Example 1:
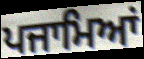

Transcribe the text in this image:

ਪਜਾਮਿਆਂ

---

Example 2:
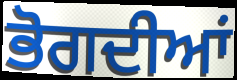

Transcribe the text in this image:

ਭੋਗਦੀਆਂ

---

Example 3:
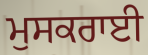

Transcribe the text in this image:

ਮੁਸਕਰਾਈ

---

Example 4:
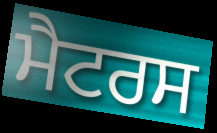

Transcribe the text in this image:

ਮੈਟਰਸ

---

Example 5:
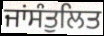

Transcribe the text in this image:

ਜਾਂਸੰਤੁਲਿਤ